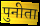
पुनीता